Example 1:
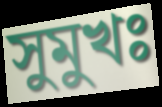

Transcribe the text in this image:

সুমুখঃ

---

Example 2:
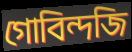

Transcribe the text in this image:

গোবিন্দজি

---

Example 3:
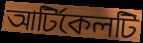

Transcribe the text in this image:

আর্টিকেলটি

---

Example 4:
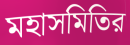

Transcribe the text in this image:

মহাসমিতির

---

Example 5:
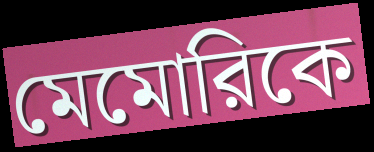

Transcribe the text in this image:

মেমোরিকে